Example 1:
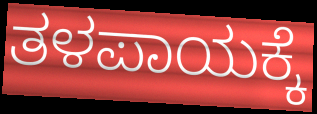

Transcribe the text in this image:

ತಳಪಾಯಕ್ಕೆ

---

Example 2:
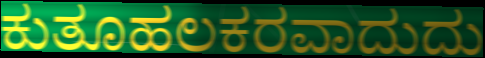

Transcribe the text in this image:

ಕುತೂಹಲಕರವಾದುದು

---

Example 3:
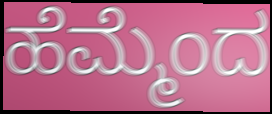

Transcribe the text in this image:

ಹೆಮ್ಮೆಂದ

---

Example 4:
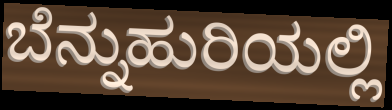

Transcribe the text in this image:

ಬೆನ್ನುಹುರಿಯಲ್ಲಿ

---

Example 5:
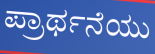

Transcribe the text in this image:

ಪ್ರಾರ್ಥನೆಯು